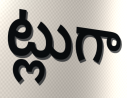
ట్లుగా